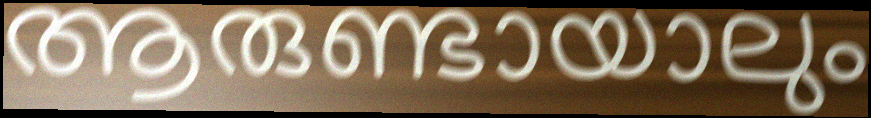
ആരുണ്ടായാലും